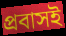
প্রবাসই